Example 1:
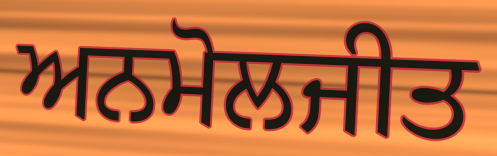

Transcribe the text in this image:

ਅਨਮੋਲਜੀਤ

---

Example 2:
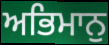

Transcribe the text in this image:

ਅਭਿਮਾਨੁ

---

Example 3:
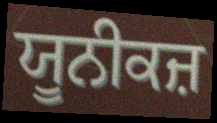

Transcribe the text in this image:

ਯੂਨੀਕਜ਼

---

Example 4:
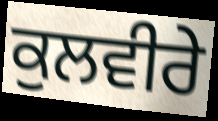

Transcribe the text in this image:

ਕੁਲਵੀਰੇ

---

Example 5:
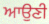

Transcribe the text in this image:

ਆਉਣੀ